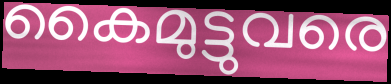
കൈമുട്ടുവരെ